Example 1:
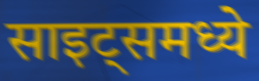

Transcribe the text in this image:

साइट्समध्ये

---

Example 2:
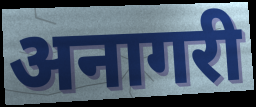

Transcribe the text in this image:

अनागरी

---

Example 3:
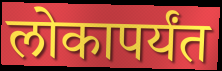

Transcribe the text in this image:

लोकापर्यंत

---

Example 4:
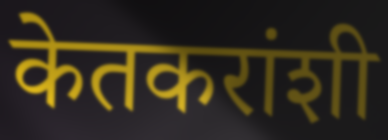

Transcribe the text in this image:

केतकरांशी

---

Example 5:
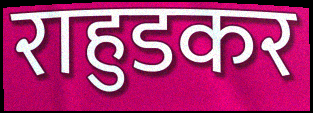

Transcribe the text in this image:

राहुडकर